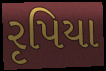
રૃપિયા